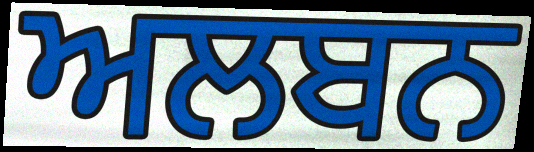
ਅਲਬਨ